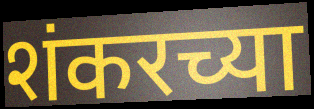
शंकरच्या